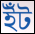
ইঁট